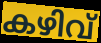
കഴിവ്